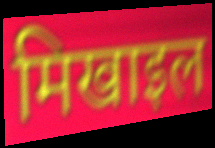
मिखाइल